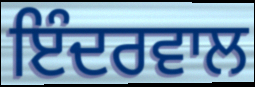
ਇੰਦਰਵਾਲ